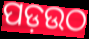
ପଡ଼ଉଠ